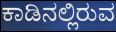
ಕಾಡಿನಲ್ಲಿರುವ